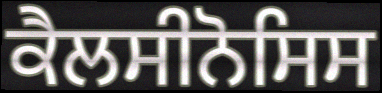
ਕੈਲਸੀਨੋਸਿਸ